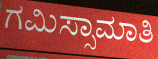
ಗಮಿಸ್ಸಾಮಾತಿ